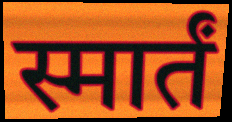
स्मार्तं